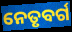
ନେତୃବର୍ଗ